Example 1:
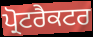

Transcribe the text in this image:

ਪ੍ਰੋਟਰੈਕਟਰ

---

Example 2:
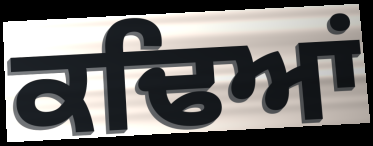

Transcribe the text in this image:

ਕਢਿਆਂ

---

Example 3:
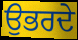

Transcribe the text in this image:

ਉਭਰਦੇ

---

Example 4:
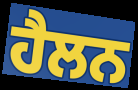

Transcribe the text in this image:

ਹੈਲਨ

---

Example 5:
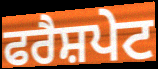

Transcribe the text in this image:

ਫਰੈਸ਼ਪੇਟ